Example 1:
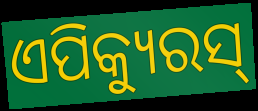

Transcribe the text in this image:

ଏପିକ୍ୟୁରସ୍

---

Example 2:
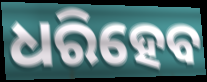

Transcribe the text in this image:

ଧରିହେବ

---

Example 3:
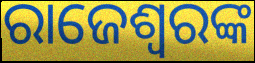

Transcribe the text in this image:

ରାଜେଶ୍ୱରଙ୍କ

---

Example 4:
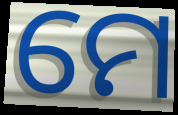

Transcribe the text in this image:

ମେ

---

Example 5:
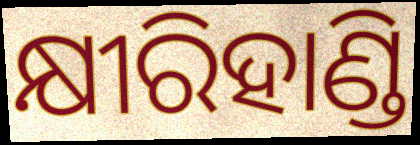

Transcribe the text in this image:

କ୍ଷୀରିହାଣ୍ଡି